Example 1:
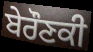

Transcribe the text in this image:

ਬੇਰੌਣਕੀ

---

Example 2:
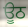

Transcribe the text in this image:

ਊਠ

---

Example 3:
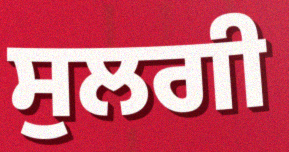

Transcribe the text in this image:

ਸੁਲਗੀ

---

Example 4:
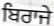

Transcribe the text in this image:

ਬਿਰਾਜੇ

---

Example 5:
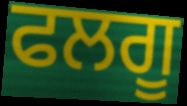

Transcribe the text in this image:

ਫਲਗੂ